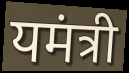
यमंत्री